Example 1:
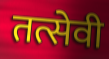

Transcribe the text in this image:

तत्सेवी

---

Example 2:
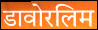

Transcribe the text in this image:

डावोरलिम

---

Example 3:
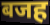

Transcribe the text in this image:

बजह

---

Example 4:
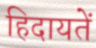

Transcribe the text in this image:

हिदायतें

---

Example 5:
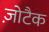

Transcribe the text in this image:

ज़ोटैक